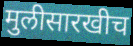
मुलीसारखीच